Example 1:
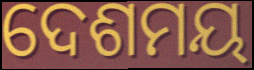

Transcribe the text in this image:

ଦେଶମୟ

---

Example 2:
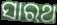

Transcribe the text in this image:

ସାରଥ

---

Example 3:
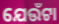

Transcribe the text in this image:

ଯେଉଁଟା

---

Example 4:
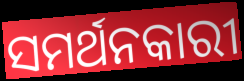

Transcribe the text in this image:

ସମର୍ଥନକାରୀ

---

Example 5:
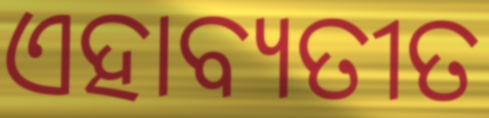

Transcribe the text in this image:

ଏହାବ୍ୟତୀତ